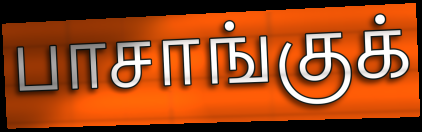
பாசாங்குக்